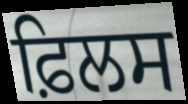
ਫ਼ਿਲਸ